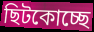
ছিটকোচ্ছে